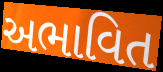
અભાવિત